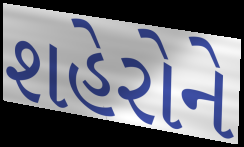
શહેરોને